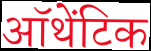
ऑथेंटिक